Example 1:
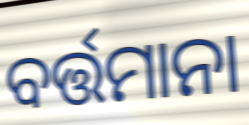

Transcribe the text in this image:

ବର୍ତ୍ତମାନା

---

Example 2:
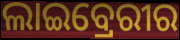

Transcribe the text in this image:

ଲାଇବ୍ରେରୀର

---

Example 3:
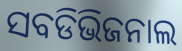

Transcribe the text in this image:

ସବଡିଭିଜନାଲ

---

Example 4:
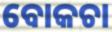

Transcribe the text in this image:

ବୋକଚା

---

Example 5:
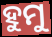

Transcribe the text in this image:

ହୁମୁ